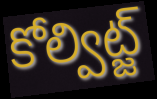
కోల్విట్జ్